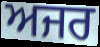
ਅਜਰ